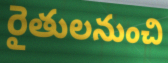
రైతులనుంచి